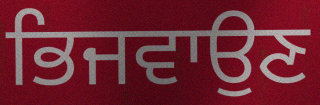
ਭਿਜਵਾਉਣ